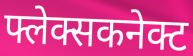
फ्लेक्सकनेक्ट